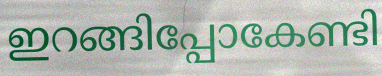
ഇറങ്ങിപ്പോകേണ്ടി